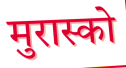
मुरास्को